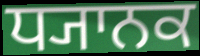
ਧ੍ਯਾਨਕ